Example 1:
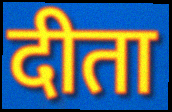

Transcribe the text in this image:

दीता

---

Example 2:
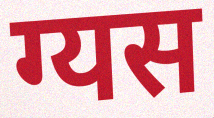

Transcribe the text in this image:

ग्यस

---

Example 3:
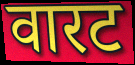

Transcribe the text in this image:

वारट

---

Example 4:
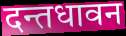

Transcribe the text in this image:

दन्तधावन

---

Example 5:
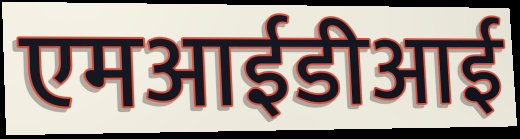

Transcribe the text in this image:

एमआईडीआई